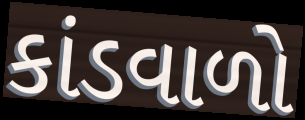
કાંડવાળો